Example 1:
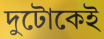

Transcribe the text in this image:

দুটোকেই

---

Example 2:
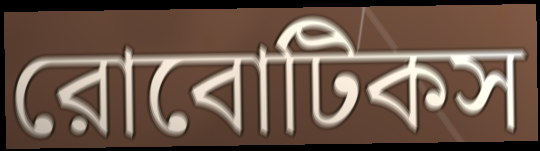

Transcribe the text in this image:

রোবোটিকস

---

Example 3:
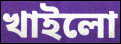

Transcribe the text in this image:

খাইলো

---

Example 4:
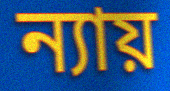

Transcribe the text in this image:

ন্যায়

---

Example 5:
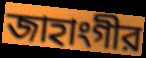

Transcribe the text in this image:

জাহাংগীর